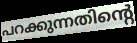
പറക്കുന്നതിന്റെ